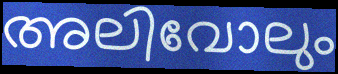
അലിവോലും